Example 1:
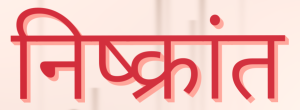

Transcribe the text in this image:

निष्क्रांत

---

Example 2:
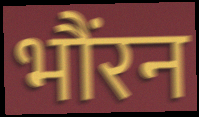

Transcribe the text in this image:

भौंरन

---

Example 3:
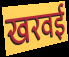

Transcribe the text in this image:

खरवई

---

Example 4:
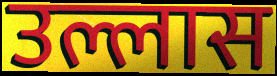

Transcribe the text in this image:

उल्‍लास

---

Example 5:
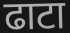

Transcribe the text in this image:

ढाटा